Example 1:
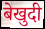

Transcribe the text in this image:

बेखुदी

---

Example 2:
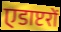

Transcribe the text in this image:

एडाप्टरों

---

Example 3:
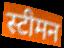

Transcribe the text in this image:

स्टीमन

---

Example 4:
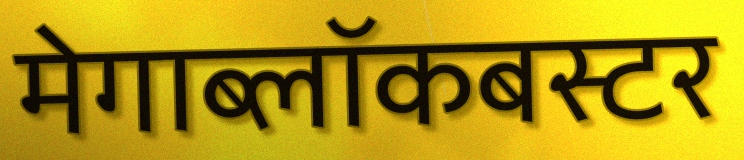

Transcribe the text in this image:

मेगाब्लॉकबस्टर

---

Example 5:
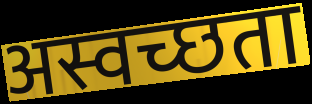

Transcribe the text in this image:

अस्वच्छता